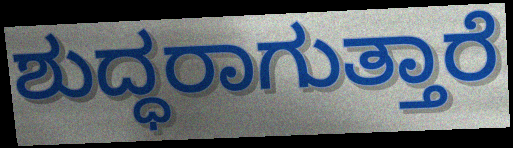
ಶುದ್ಧರಾಗುತ್ತಾರೆ